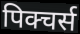
पिक्चर्स